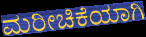
ಮರೀಚಿಕೆಯಾಗಿ